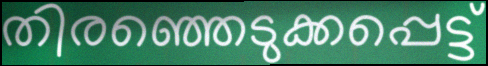
തിരഞ്ഞെടുക്കപ്പെട്ട്